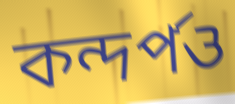
কন্দর্পও